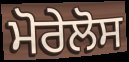
ਮੋਰੇਲੋਸ